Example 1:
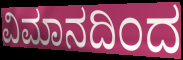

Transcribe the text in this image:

ವಿಮಾನದಿಂದ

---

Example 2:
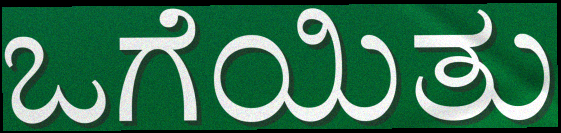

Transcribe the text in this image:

ಒಗೆಯಿತು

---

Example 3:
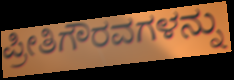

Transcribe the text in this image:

ಪ್ರೀತಿಗೌರವಗಳನ್ನು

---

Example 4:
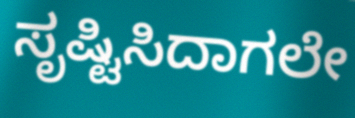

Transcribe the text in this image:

ಸೃಷ್ಟಿಸಿದಾಗಲೇ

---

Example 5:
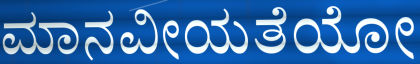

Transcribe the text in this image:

ಮಾನವೀಯತೆಯೋ